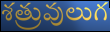
శత్రువులుగ